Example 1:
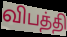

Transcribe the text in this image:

விபத்தி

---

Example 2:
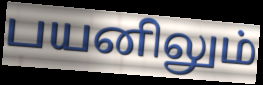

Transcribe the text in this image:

பயனிலும்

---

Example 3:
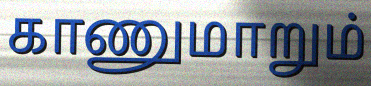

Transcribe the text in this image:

காணுமாறும்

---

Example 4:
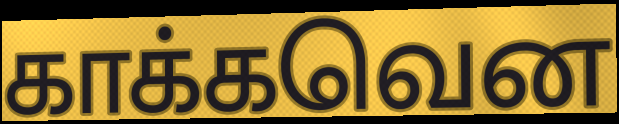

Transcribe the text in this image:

காக்கவென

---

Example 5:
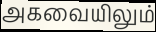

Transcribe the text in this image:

அகவையிலும்